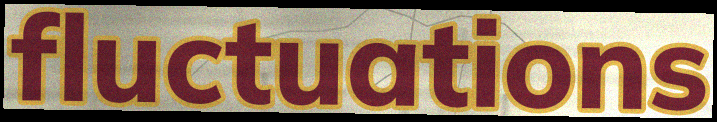
fluctuations